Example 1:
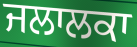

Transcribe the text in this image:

ਜਲਾਲਕਾ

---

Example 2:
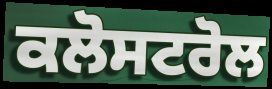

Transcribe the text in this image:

ਕਲੋਸਟਰੋਲ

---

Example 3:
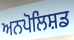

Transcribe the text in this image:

ਅਨਪੋਲਿਸ਼ਡ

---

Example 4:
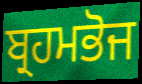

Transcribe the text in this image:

ਬ੍ਰਹਮਭੋਜ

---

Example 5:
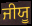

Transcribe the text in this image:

ਜੀਯੂ